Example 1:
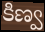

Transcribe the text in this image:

కిణ్వ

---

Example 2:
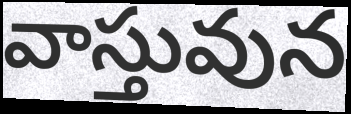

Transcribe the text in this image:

వాస్తువున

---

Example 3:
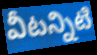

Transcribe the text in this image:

వీటన్నిటి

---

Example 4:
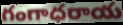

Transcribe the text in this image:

గంగాధరాయ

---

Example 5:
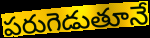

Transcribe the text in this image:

పరుగెడుతూనే